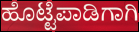
ಹೊಟ್ಟೆಪಾಡಿಗಾಗಿ